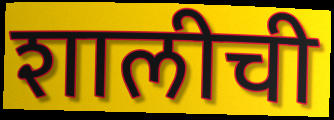
शालीची